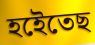
হইেতেছ